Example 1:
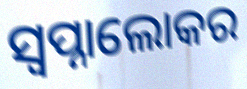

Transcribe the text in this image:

ସ୍ୱପ୍ନାଲୋକର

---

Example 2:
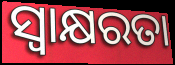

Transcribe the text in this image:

ସ୍ବାକ୍ଷରତା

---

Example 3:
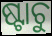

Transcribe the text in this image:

ଷ୍ଟାଚୁ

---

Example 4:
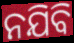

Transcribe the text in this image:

ନଯିବି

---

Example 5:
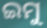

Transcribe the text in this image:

ଇମୁ